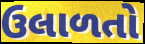
ઉલાળતો